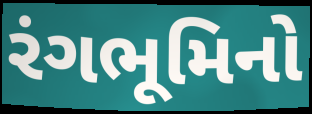
રંગભૂમિનો